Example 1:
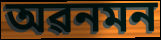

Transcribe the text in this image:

অৱনমন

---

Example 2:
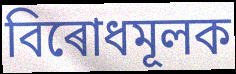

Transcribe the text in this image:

বিৰোধমূলক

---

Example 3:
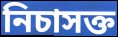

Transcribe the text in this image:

নিচাসক্ত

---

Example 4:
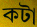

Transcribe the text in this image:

কটা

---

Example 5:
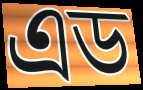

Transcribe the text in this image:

এড